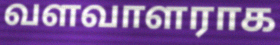
வளவாளராக